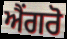
ਐਂਗਰੋ